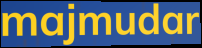
majmudar